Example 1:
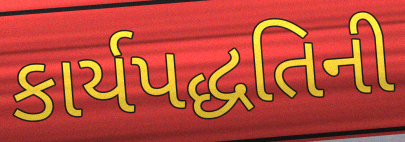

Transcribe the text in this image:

કાર્યપદ્ધતિની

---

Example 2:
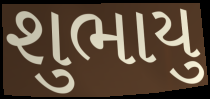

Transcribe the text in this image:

શુભાયુ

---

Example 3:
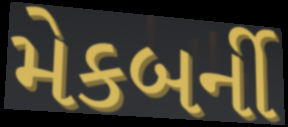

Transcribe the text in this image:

મેકબર્ની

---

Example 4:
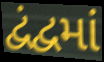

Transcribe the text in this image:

દ્વંદ્વમાં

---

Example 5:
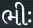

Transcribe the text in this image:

ભીઃ